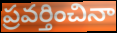
ప్రవర్తించినా